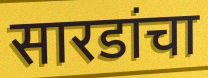
सारडांचा